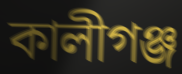
কালীগঞ্জ